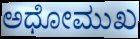
ಅಧೋಮುಖ